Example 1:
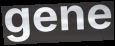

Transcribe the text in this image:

gene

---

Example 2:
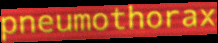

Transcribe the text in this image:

pneumothorax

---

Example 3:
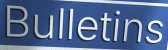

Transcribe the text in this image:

Bulletins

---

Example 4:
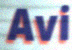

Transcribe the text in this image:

Avi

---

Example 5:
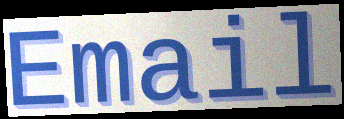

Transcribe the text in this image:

Email